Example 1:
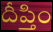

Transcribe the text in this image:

దీప్తిం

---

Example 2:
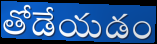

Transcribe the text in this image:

తోడేయడం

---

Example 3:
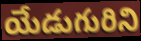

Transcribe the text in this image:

యేడుగురిని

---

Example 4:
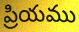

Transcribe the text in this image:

ప్రియము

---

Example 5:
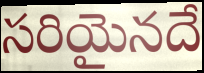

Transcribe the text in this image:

సరియైనదే